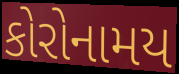
કોરોનામય